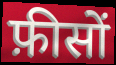
फ़ीसों